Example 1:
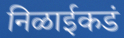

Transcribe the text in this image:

निळाईकडं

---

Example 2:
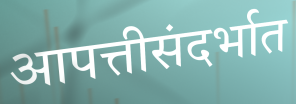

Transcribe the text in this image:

आपत्तीसंदर्भात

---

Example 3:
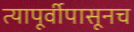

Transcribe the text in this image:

त्यापूर्वीपासूनच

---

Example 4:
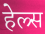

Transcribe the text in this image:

हेल्स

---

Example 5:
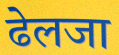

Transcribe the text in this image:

ढेलजा